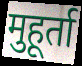
मुहूर्ता